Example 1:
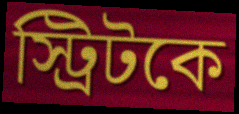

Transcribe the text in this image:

স্ট্রিটকে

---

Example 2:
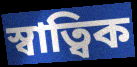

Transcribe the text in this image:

স্বাত্বিক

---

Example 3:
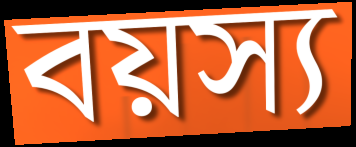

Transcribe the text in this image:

বয়স্য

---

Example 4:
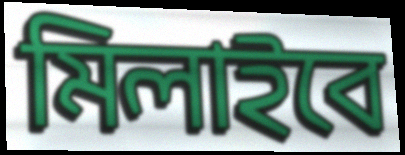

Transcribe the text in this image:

মিলাইবে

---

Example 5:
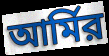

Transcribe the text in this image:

আর্মির